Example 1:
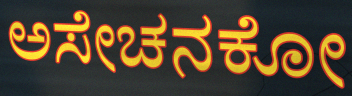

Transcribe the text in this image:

ಅಸೇಚನಕೋ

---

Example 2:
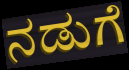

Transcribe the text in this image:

ನಡುಗೆ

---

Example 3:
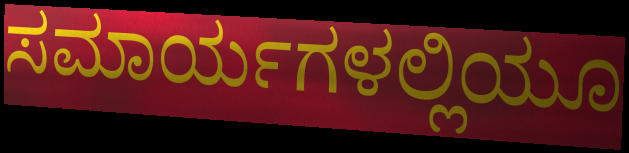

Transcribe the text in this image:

ಸಮಾರ್ಯಗಳಲ್ಲಿಯೂ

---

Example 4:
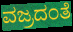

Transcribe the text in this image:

ವಜ್ರದಂತೆ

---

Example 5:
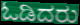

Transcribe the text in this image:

ಓಡಿದರು